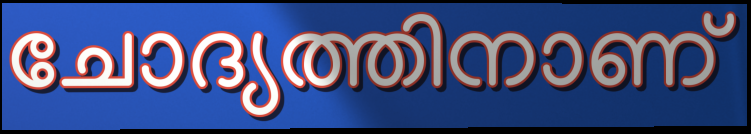
ചോദ്യത്തിനാണ്